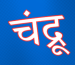
चंद्रू